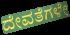
ದೇವತೆಗಳೇ